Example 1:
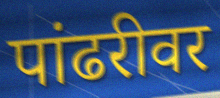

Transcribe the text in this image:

पांढरीवर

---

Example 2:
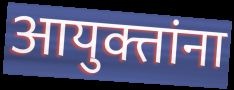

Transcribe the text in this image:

आयुक्तांना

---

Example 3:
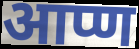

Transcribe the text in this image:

आप्ण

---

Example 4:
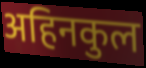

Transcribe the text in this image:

अहिनकुल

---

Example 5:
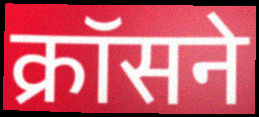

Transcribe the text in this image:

क्रॉसने